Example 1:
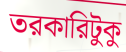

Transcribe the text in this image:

তরকারিটুকু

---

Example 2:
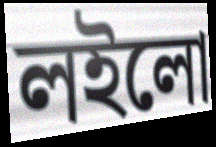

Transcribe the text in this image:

লইলো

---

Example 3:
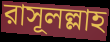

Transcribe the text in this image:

রাসূলল্লাহ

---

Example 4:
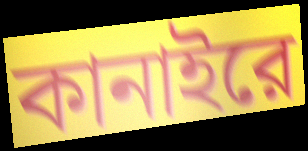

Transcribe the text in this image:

কানাইরে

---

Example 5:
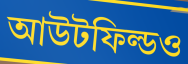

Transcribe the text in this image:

আউটফিল্ডও